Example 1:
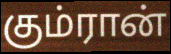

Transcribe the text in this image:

கும்ரான்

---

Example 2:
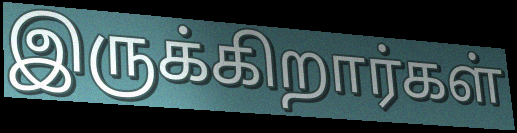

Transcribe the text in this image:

இருக்கிறார்கள்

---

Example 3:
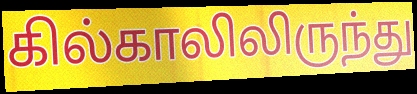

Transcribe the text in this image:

கில்காலிலிருந்து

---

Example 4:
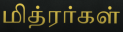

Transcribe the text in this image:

மித்ரர்கள்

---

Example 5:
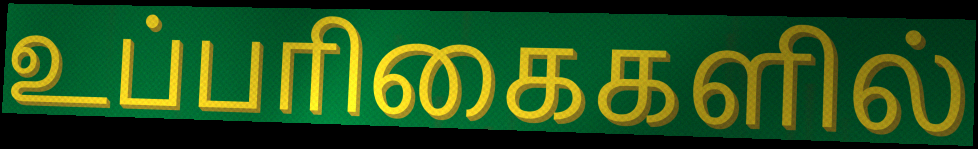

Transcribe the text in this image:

உப்பரிகைகளில்